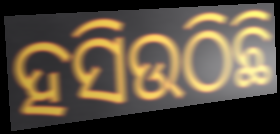
ହସିଉଠିଛି